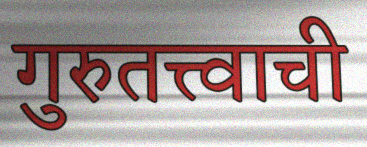
गुरुतत्त्वाची